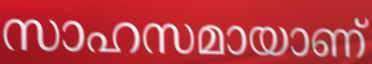
സാഹസമായാണ്